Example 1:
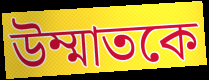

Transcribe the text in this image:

উম্মাতকে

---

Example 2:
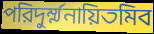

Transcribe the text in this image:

পরিদুর্ম্মনায়িতমিব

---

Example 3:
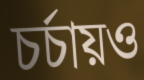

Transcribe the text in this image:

চর্চায়ও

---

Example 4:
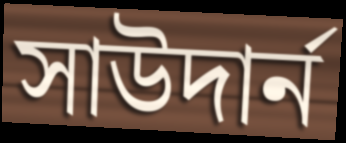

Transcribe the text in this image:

সাউদার্ন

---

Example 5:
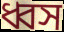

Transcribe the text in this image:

ধ্বস